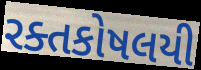
રક્તકોષલયી